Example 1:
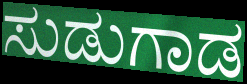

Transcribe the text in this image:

ಸುಡುಗಾಡ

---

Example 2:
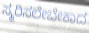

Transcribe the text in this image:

ಸ್ಮರಿಸಲೇಬೇಕಾದ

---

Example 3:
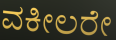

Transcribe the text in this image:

ವಕೀಲರೇ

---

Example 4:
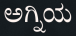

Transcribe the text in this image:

ಅಗ್ನಿಯ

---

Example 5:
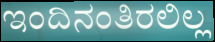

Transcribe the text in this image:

ಇಂದಿನಂತಿರಲಿಲ್ಲ